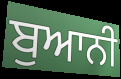
ਬੁਆਨੀ